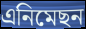
এনিমেছন